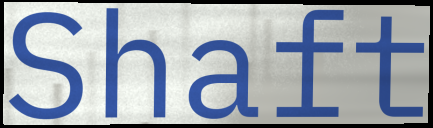
Shaft